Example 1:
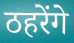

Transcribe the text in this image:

ठहरेंगे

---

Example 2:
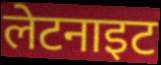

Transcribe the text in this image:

लेटनाइट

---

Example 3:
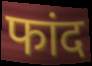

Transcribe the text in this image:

फांद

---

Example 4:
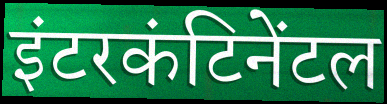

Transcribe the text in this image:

इंटरकंटिनेंटल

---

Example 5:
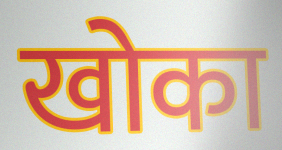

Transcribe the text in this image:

खोका